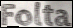
Folta